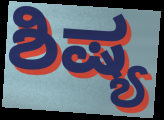
ಶಿಷ್ಯ